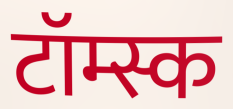
टॉम्स्क